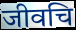
जीवचि